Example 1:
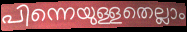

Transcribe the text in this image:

പിന്നെയുള്ളതെല്ലാം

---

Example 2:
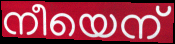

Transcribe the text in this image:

നീയെന്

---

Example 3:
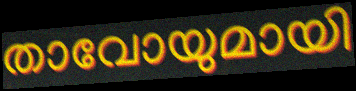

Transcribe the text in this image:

താവോയുമായി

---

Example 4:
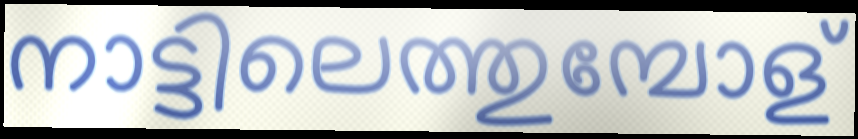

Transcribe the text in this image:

നാട്ടിലെത്തുമ്പോള്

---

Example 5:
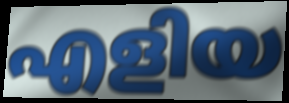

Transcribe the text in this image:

എളിയ